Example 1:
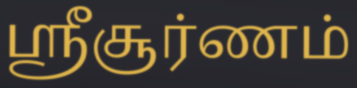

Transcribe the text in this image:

ஸ்ரீசூர்ணம்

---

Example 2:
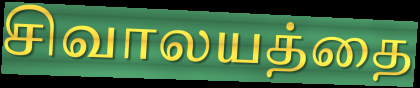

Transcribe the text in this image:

சிவாலயத்தை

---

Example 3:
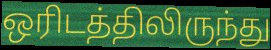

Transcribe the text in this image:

ஒரிடத்திலிருந்து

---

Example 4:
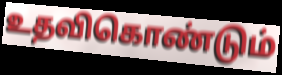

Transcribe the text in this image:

உதவிகொண்டும்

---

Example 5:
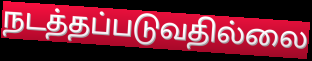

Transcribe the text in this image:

நடத்தப்படுவதில்லை